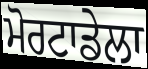
ਮੋਰਟਾਡੇਲਾ